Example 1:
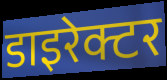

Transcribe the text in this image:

डाइरेक्टर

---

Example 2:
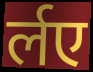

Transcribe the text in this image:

र्लए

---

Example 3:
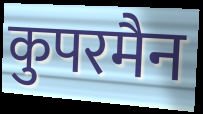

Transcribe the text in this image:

कुपरमैन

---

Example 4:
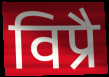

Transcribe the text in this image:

विप्रै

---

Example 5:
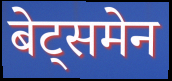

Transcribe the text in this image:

बेट्समेन